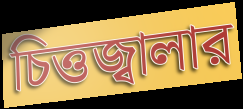
চিত্তজ্বালার